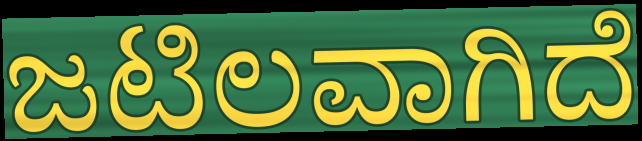
ಜಟಿಲವಾಗಿದೆ